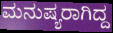
ಮನುಷ್ಯರಾಗಿದ್ದ